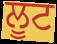
ਲੂਟ